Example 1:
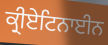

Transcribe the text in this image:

ਕ੍ਰੀਏਟਿਨਾਈਨ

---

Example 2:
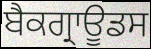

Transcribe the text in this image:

ਬੈਕਗ੍ਰਾਊਡਸ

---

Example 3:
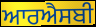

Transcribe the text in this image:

ਆਰਐਸਬੀ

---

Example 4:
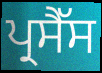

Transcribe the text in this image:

ਪ੍ਰਸੈੱਸ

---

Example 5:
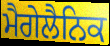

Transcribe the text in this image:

ਮੈਗੇਲੈਨਿਕ